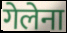
गेलेना